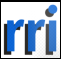
rri